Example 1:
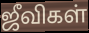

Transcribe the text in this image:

ஜீவிகள்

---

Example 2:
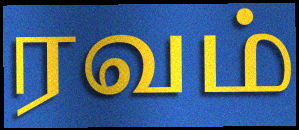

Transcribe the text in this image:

ரவம்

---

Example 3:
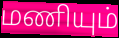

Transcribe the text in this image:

மணியும்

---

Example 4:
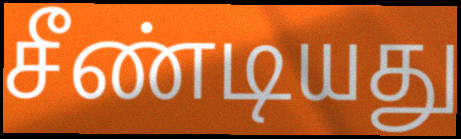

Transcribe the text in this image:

சீண்டியது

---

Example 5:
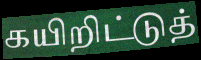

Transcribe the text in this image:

கயிறிட்டுத்